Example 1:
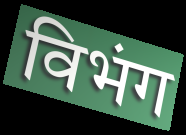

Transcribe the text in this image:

विभंग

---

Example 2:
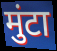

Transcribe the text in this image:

मुंटा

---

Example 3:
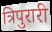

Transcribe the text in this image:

त्रिपुरारी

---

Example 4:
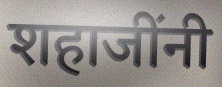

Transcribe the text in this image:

शहाजींनी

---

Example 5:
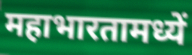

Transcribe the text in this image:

महाभारतामध्यें